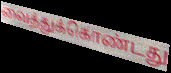
வைத்துக்கொண்டது